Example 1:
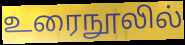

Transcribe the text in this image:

உரைநூலில்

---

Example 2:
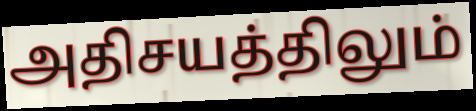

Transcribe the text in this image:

அதிசயத்திலும்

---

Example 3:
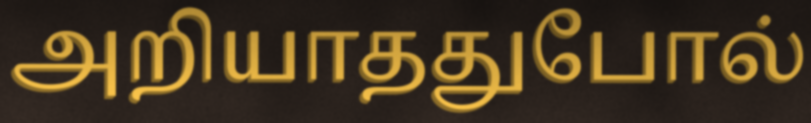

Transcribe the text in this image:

அறியாததுபோல்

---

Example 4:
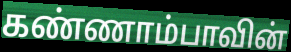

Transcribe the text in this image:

கண்ணாம்பாவின்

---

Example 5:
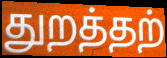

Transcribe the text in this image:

துறத்தற்